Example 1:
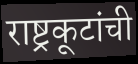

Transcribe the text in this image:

राष्ट्रकूटांची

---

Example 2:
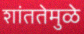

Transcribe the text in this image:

शांततेमुळे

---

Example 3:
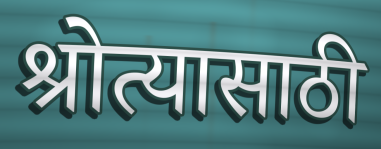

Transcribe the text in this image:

श्रोत्यासाठी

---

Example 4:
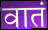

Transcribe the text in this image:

वातं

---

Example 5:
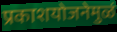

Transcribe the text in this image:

प्रकाशयोजनेमुळं